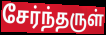
சேர்ந்தருள்